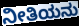
ನೀತಿಯನು